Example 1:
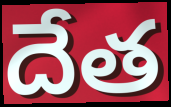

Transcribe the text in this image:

దేత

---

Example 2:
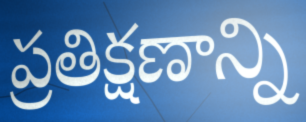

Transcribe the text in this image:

ప్రతిక్షణాన్ని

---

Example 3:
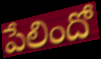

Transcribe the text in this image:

పేలిందో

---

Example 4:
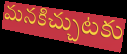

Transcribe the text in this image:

మనకిచ్చుటకు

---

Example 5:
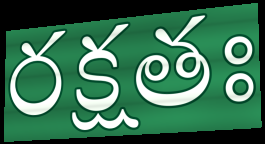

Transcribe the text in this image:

రక్షతః